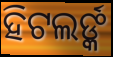
ହିଟଲର୍ଙ୍କ